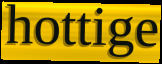
hottige